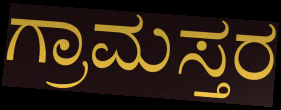
ಗ್ರಾಮಸ್ತರ